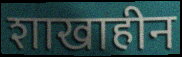
शाखाहीन